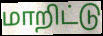
மாறிட்டு